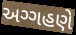
અગ્ગહણે